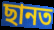
ছানত